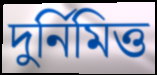
দুর্নিমিত্ত